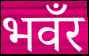
भवँर